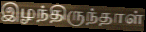
இழந்திருந்தாள்